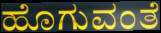
ಹೊಗುವಂತೆ